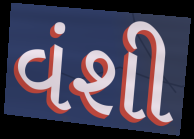
વંશી